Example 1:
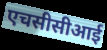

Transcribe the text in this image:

एचसीसीआई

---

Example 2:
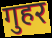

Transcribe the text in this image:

गुहर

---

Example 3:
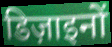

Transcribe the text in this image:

डिज़ाइनों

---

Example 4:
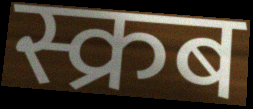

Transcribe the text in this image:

स्क्रब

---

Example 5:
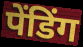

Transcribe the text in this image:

पेंडिंग